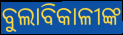
ବୁଲାବିକାଳୀଙ୍କ